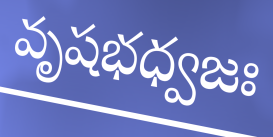
వృషభధ్వజః